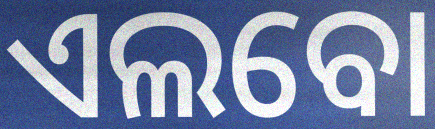
ଏଲବୋ